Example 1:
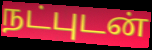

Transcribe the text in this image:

நட்புடன்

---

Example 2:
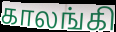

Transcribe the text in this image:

காலங்கி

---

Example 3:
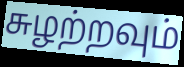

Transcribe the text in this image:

சுழற்றவும்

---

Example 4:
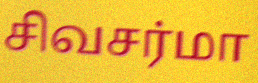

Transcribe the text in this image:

சிவசர்மா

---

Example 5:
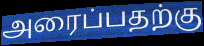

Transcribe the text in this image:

அரைப்பதற்கு